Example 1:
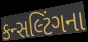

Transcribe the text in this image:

કન્સલ્ટિંગના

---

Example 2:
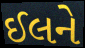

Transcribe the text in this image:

ઈલને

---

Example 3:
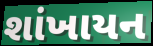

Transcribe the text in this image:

શાંખાયન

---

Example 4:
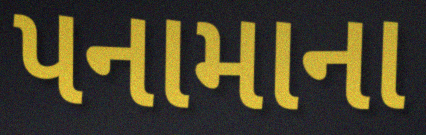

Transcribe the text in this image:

પનામાના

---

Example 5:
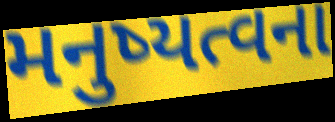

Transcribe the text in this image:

મનુષ્યત્વના